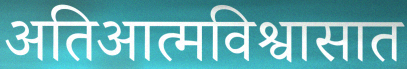
अतिआत्मविश्वासात